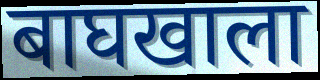
बाघखाला